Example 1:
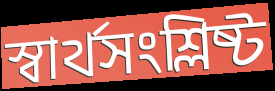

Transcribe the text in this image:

স্বার্থসংশ্লিষ্ট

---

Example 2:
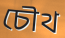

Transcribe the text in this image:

চৌথ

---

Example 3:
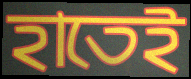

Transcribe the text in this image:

হাতেই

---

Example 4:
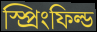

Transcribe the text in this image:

স্প্রিংফিল্ড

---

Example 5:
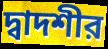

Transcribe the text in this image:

দ্বাদশীর